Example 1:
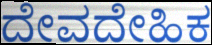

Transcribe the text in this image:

ದೇವದೇಹಿಕ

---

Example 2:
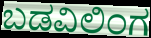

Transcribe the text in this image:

ಬಡವಿಲಿಂಗ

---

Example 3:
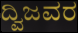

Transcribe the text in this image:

ದ್ವಿಜವರ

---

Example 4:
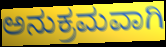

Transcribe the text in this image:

ಅನುಕ್ರಮವಾಗಿ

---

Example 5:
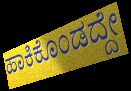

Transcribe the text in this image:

ಹಾಕಿಕೊಂಡದ್ದೇ